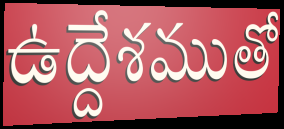
ఉద్దేశముతో